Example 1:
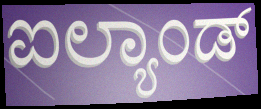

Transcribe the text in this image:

ಐಲ್ಯಾಂಡ್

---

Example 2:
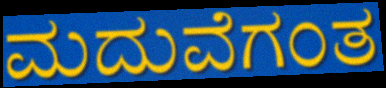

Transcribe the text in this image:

ಮದುವೆಗಂತ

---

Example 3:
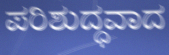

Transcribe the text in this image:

ಪರಿಶುದ್ಧವಾದ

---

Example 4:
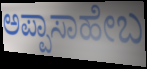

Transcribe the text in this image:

ಅಪ್ಪಾಸಾಹೇಬ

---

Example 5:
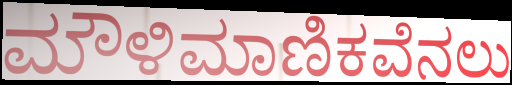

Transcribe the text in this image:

ಮೌಳಿಮಾಣಿಕವೆನಲು